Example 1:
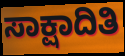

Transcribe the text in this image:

ಸಾಕ್ಷಾದಿತಿ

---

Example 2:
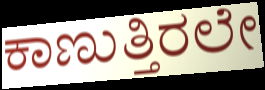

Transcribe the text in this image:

ಕಾಣುತ್ತಿರಲೇ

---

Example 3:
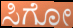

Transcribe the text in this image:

ಸಿಗೋ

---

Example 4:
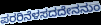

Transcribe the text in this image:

ಪರರಿನೆಳಸದದೇನನುಂ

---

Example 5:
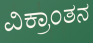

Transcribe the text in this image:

ವಿಕ್ರಾಂತನ